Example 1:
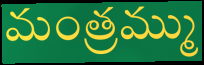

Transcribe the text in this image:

మంత్రమ్ము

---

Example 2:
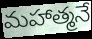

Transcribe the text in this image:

మహాత్మనే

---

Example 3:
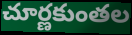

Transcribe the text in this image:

చూర్ణకుంతల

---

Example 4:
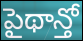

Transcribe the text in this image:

పైథాన్తో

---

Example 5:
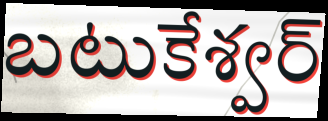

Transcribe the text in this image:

బటుకేశ్వర్